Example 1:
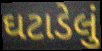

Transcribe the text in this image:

ઘટાડેલું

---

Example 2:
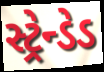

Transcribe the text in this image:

સ્ટ્રેન્ડેડ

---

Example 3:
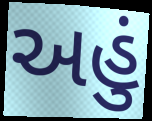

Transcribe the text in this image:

અહું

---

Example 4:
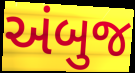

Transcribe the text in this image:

અંબુજ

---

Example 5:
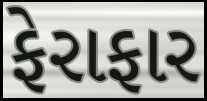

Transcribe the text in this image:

ફેરાફાર